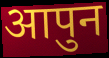
आपुन